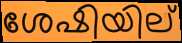
ശേഷിയില്